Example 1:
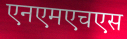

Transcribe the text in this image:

एनएमएचएस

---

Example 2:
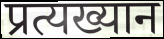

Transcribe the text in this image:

प्रत्यख्यान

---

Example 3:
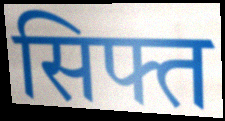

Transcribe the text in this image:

सिफ्त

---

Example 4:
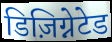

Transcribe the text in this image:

डिज़िग्नेटेड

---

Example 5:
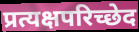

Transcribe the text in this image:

प्रत्यक्षपरिच्छेद